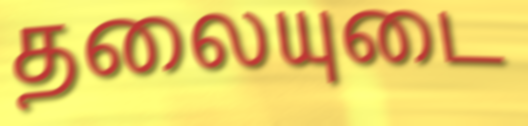
தலையுடை